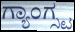
ಗ್ಯಾಂಗ್ಸ್ಟ